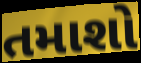
તમાશો